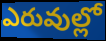
ఎరువుల్లో